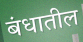
बंधातील